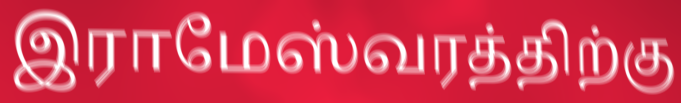
இராமேஸ்வரத்திற்கு